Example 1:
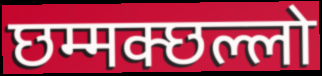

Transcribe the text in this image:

छम्मक्छल्लो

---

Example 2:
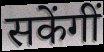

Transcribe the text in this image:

सकेंगीं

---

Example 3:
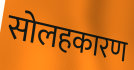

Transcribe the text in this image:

सोलहकारण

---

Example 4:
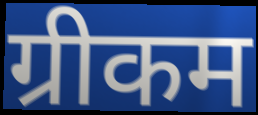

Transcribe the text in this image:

ग्रीकम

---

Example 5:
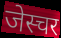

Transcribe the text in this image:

जेस्चर